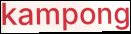
kampong